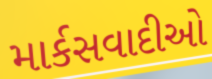
માર્કસવાદીઓ